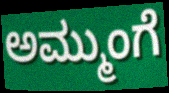
ಅಮ್ಮುಂಗೆ